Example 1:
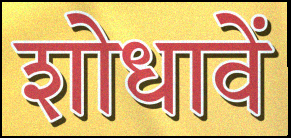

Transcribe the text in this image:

शोधावें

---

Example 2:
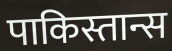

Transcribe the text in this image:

पाकिस्तान्स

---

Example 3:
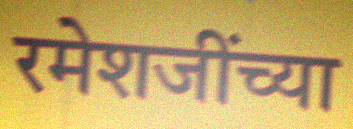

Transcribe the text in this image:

रमेशजींच्या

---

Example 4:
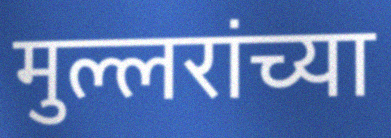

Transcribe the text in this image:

मुल्लरांच्या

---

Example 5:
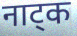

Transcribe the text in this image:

नाट्क